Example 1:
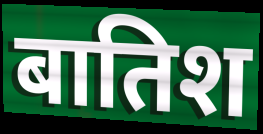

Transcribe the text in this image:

बातिश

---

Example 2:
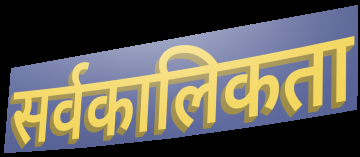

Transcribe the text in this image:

सर्वकालिकता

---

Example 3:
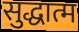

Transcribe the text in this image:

सुद्धात्म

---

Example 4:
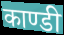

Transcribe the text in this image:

काण्डी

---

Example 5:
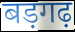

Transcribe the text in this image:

बड़गढ़